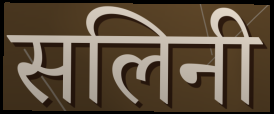
सलिनी